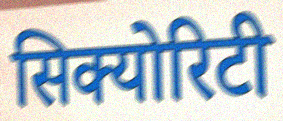
सिक्योरिटी